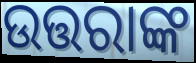
ଉତ୍ତରାଙ୍କ